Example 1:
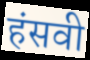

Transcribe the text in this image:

हंसवी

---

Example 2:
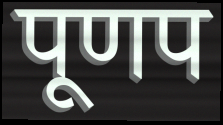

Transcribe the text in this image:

पूणप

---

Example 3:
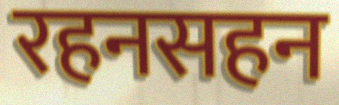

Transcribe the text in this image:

रहनसहन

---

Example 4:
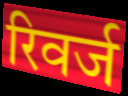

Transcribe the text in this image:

रिवर्ज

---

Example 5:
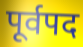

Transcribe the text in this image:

पूर्वपद